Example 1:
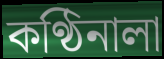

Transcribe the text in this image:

কণ্ঠিনালা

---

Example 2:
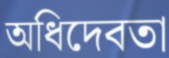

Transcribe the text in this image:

অধিদেবতা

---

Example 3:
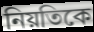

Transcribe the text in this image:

নিয়তিকে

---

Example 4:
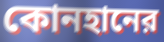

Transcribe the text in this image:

কোনহানের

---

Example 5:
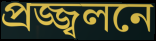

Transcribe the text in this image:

প্রজ্জ্বলনে